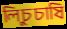
লিচুচাষি